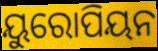
ୟୁରୋପିୟନ